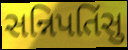
સન્નિપતિંસુ